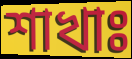
শাখাঃ